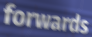
forwards